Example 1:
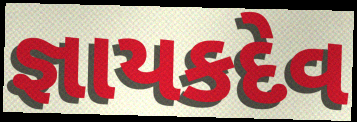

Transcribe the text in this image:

જ્ઞાયકદેવ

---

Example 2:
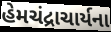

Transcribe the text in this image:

હેમચંદ્રાચાર્યના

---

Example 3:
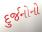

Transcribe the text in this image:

દુર્જનોનો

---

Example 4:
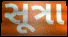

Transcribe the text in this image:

સૂત્રા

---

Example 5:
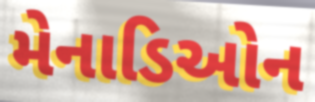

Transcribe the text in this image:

મેનાડિઓન